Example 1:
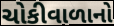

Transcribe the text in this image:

ચોકીવાળાનો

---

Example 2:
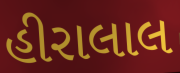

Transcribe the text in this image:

હીરાલાલ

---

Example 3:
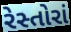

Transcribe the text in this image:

રેસ્તોરાં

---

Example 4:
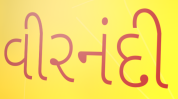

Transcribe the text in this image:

વીરનંદી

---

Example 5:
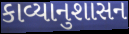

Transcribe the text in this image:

કાવ્યાનુશાસન